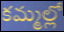
కమ్మల్లో